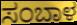
ಸಂಬಾಳ